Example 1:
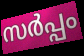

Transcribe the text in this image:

സർപ്പം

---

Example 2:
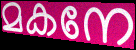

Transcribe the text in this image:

മകനേ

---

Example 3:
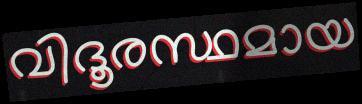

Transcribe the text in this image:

വിദൂരസ്ഥമായ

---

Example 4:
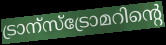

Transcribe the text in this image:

ട്രാന്സ്ട്രോമറിന്റെ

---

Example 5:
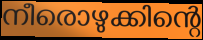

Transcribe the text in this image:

നീരൊഴുക്കിന്റെ